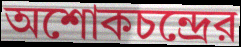
অশোকচন্দ্রের